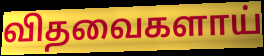
விதவைகளாய்